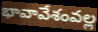
భావావేశంవల్ల